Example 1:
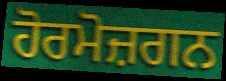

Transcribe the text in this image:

ਹੋਰਮੋਜ਼ਗਨ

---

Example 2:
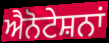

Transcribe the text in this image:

ਐਨੋਟੇਸ਼ਨਾਂ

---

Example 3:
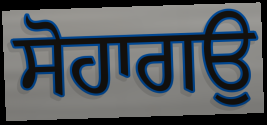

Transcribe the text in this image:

ਸੋਹਾਗਉ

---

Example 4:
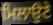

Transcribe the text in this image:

ਮਿਲਾਉਣੇ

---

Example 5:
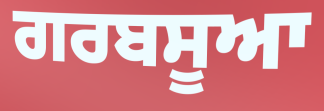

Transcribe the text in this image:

ਗਰਬਸੂਆ